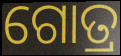
ଗୋତ୍ର